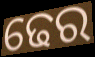
ଢେର